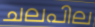
ചലപില